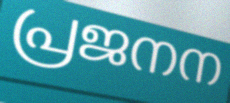
പ്രജനന